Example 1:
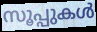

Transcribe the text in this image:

സൂപ്പുകൾ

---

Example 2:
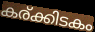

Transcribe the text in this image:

കര്ക്കിടകം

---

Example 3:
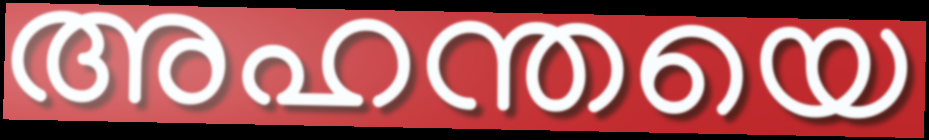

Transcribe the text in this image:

അഹന്തയെ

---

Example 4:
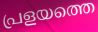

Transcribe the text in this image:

പ്രളയത്തെ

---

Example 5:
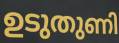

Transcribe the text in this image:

ഉടുതുണി